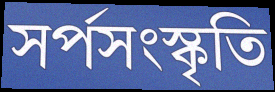
সর্পসংস্কৃতি